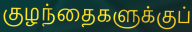
குழந்தைகளுக்குப்